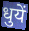
धुयें